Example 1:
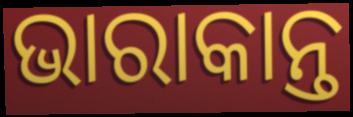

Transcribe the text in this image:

ଭାରାକାନ୍ତ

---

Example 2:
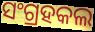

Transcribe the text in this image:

ସଂଗ୍ରହକଲ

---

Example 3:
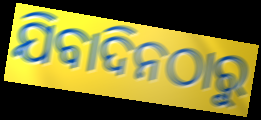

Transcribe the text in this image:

ଯିବାଦିନଠାରୁ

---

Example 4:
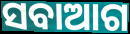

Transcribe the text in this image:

ସବାଆଗ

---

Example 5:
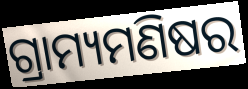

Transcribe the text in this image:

ଗ୍ରାମ୍ୟମଣିଷର